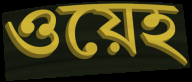
ওয়েহ